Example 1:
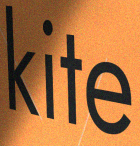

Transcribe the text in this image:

kite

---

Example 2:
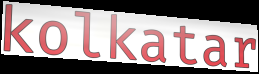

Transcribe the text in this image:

kolkatar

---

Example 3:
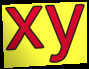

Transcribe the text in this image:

xy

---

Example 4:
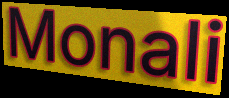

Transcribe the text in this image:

Monali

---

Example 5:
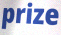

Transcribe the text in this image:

prize